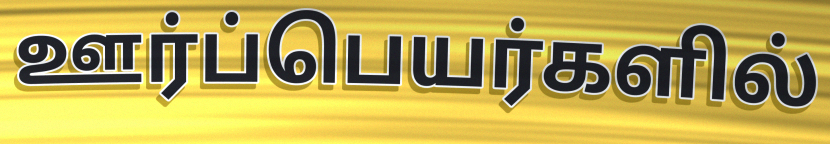
ஊர்ப்பெயர்களில்